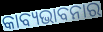
କାବ୍ୟଭାବନାର